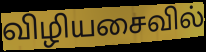
விழியசைவில்